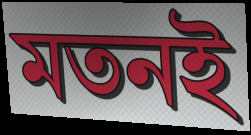
মতনই